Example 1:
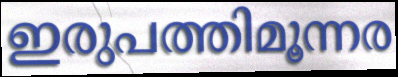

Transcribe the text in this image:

ഇരുപത്തിമൂന്നര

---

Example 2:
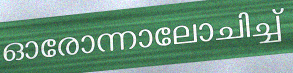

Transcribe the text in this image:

ഓരോന്നാലോചിച്ച്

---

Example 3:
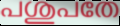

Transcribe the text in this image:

പശുപതേ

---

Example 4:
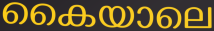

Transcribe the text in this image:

കൈയാലെ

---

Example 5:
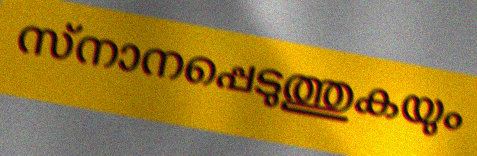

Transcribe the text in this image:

സ്‌നാനപ്പെടുത്തുകയും